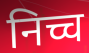
निच्च